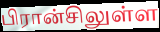
பிரான்சிலுள்ள